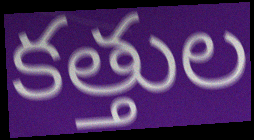
కత్తుల